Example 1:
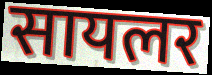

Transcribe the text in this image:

सायलर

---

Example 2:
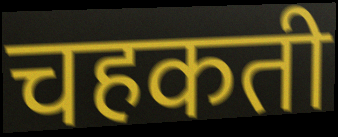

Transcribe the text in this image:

चहकती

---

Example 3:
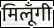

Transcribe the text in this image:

मिलूँगी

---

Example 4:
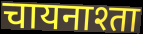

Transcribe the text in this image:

चायनाश्ता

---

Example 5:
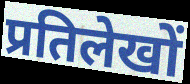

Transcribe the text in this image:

प्रतिलेखों